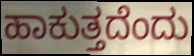
ಹಾಕುತ್ತದೆಂದು